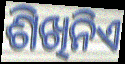
ଶିଖିନିଏ